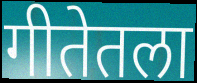
गीतेतला